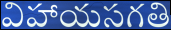
విహాయసగతి